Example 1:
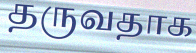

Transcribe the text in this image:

தருவதாக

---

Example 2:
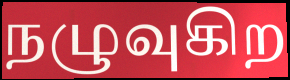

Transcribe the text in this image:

நழுவுகிற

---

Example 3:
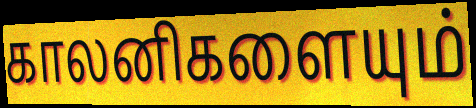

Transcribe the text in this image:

காலனிகளையும்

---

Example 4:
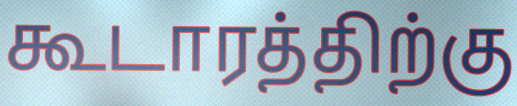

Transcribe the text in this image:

கூடாரத்திற்கு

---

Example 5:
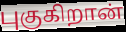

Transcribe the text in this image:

புகுகிறான்